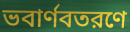
ভবার্ণবতরণে